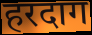
हरदाग